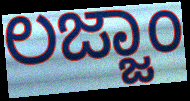
ಲಜ್ಜಾಂ